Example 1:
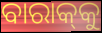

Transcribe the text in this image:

ବାରାକ୍‌କୁ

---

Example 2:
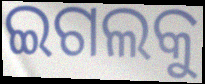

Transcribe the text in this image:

ଇଗଲକୁ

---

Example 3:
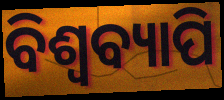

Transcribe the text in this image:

ବିଶ୍ବବ୍ୟାପି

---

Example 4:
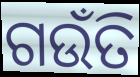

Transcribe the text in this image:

ଗଉଁତି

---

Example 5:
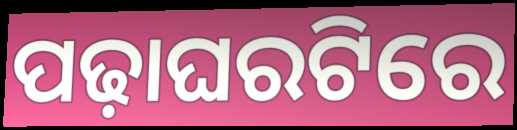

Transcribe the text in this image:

ପଢ଼ାଘରଟିରେ